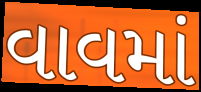
વાવમાં